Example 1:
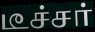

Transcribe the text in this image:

டீச்சர்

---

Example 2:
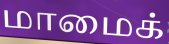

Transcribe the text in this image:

மாமைக்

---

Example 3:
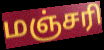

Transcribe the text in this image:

மஞ்சரி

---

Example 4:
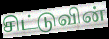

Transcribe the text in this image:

சிட்டுவின்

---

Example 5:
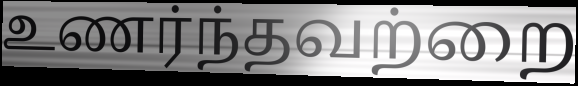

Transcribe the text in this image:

உணர்ந்தவற்றை